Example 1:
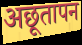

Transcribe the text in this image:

अछूतापन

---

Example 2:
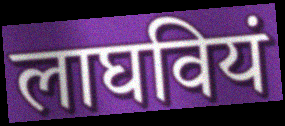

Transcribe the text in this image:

लाघवियं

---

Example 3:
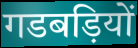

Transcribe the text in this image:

गडबड़ियों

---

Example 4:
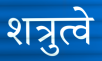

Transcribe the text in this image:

शत्रुत्वे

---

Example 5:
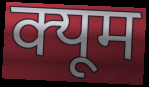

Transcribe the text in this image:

क्यूम